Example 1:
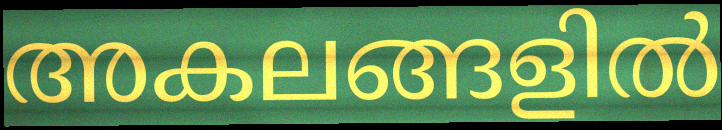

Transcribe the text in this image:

അകലങ്ങളിൽ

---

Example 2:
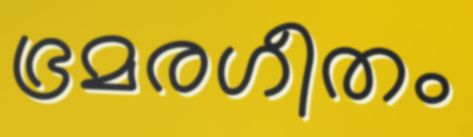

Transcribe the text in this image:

ഭ്രമരഗീതം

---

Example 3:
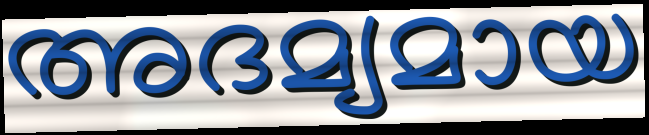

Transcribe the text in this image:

അദമ്യമായ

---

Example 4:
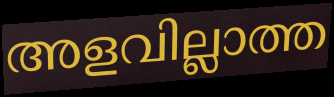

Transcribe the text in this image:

അളവില്ലാത്ത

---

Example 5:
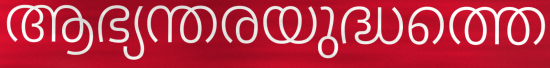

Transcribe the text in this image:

ആഭ്യന്തരയുദ്ധത്തെ